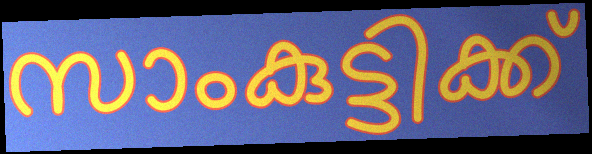
സാംകുട്ടിക്ക്